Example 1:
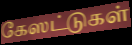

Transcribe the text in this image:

கேஸட்டுகள்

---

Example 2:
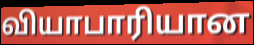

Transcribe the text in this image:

வியாபாரியான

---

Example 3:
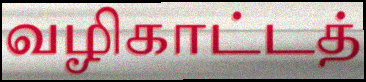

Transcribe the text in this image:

வழிகாட்டத்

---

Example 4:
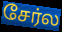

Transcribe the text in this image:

சேர்ல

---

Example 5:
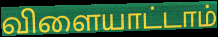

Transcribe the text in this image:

விளையாட்டாம்